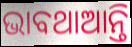
ଭାବଥାଆନ୍ତି